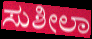
ಸುಶೀಲಾ